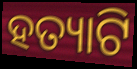
ହତ୍ୟାଟି